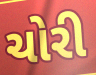
ચોરી